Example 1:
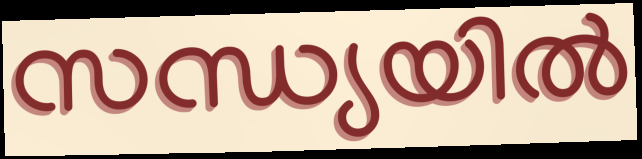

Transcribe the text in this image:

സന്ധ്യയിൽ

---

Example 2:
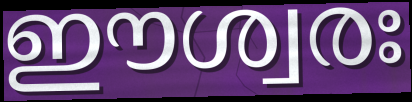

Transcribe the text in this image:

ഈശ്വരഃ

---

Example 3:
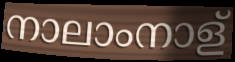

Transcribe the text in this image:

നാലാംനാള്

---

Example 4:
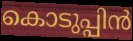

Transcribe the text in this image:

കൊടുപ്പിൻ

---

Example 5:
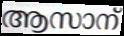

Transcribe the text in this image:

ആസാന്